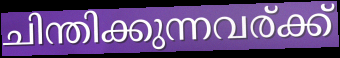
ചിന്തിക്കുന്നവര്ക്ക്